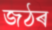
জঠৰ